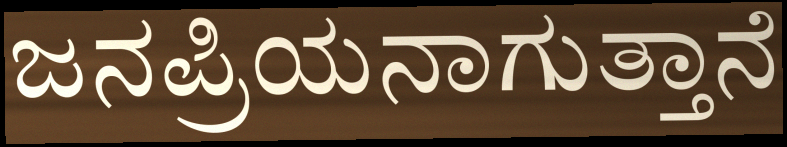
ಜನಪ್ರಿಯನಾಗುತ್ತಾನೆ